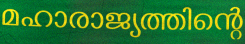
മഹാരാജ്യത്തിന്റെ